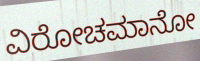
ವಿರೋಚಮಾನೋ